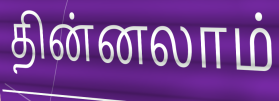
தின்னலாம்